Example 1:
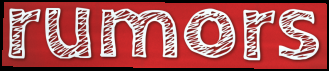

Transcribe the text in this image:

rumors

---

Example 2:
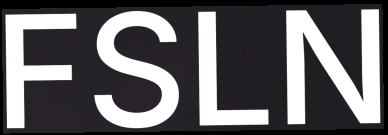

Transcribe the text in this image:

FSLN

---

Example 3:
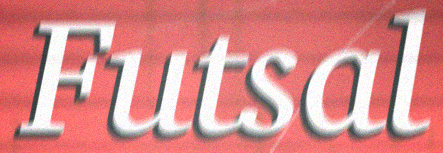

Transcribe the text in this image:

Futsal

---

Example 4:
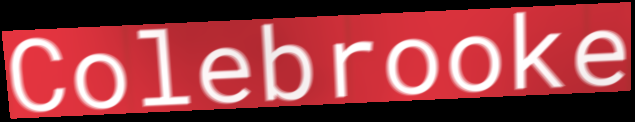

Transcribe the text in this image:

Colebrooke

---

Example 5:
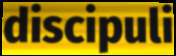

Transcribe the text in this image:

discipuli